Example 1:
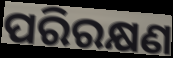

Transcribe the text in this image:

ପରିରକ୍ଷଣ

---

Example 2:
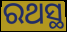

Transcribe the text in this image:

ରଥସ୍ଥ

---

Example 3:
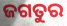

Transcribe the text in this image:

ଜଗତୁର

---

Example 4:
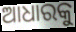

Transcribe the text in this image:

ଆଧାରକୁ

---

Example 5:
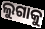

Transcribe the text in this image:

ଲୁଗାକୁ